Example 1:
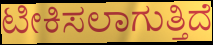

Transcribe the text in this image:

ಟೀಕಿಸಲಾಗುತ್ತಿದೆ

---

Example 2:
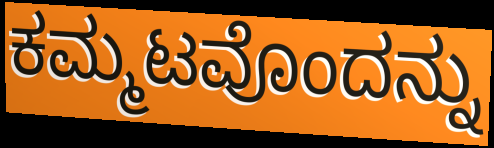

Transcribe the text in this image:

ಕಮ್ಮಟವೊಂದನ್ನು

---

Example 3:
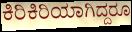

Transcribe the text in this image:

ಕಿರಿಕಿರಿಯಾಗಿದ್ದರೂ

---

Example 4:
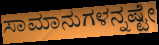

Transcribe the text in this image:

ಸಾಮಾನುಗಳನ್ನಷ್ಟೇ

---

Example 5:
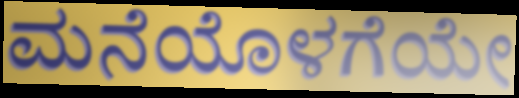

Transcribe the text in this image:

ಮನೆಯೊಳಗೆಯೇ